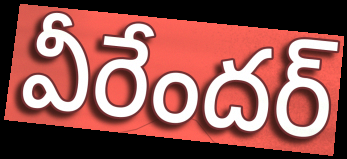
వీరేందర్